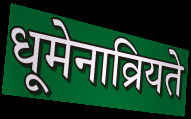
धूमेनाव्रियते